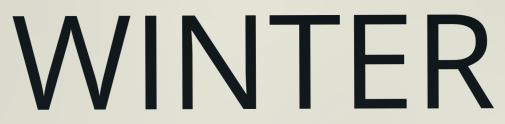
WINTER